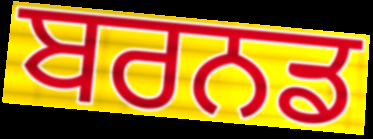
ਬਰਨਡ